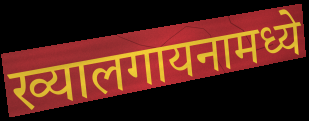
ख्यालगायनामध्ये